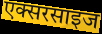
एक्‍सरसाइज